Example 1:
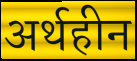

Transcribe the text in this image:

अर्थहीन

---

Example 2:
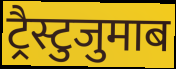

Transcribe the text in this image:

ट्रैस्टुजुमाब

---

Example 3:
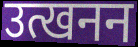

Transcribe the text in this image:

उत्खनन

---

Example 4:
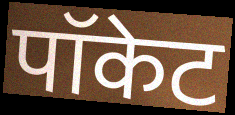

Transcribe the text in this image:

पॉकेट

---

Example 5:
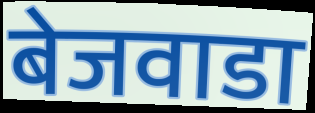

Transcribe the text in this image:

बेजवाडा